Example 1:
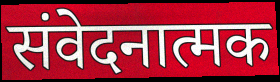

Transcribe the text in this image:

संवेदनात्मक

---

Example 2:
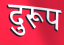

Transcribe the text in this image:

दुरूप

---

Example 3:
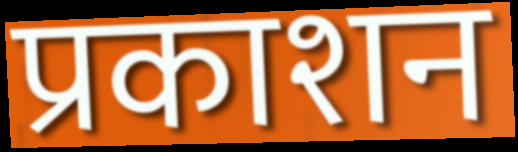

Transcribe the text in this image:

प्रकाशन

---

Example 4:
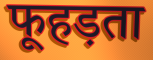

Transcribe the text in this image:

फूहड़ता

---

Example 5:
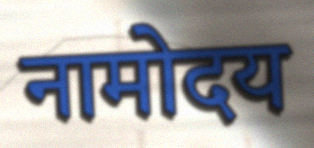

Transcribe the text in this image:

नामोदय